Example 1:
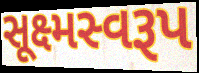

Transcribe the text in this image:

સૂક્ષ્મસ્વરૂપ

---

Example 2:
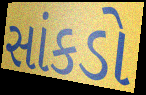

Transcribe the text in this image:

સાંકડો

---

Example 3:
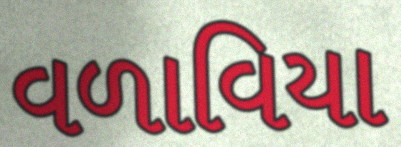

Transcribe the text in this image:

વળાવિયા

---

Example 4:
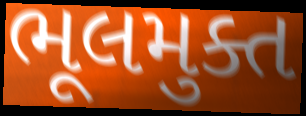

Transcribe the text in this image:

ભૂલમુક્ત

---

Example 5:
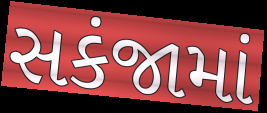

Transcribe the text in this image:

સકંજામાં